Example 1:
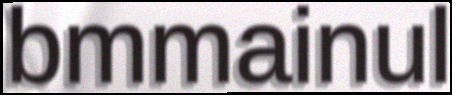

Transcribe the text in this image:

bmmainul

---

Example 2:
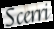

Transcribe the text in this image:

Scerri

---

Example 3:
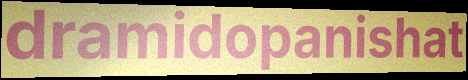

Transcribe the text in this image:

dramidopanishat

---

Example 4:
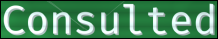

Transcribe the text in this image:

Consulted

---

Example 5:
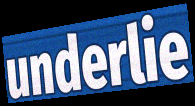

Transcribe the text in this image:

underlie